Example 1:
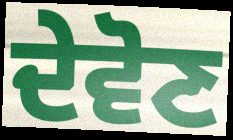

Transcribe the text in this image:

ਦੇਵੋਣ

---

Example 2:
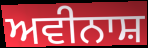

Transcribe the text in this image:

ਅਵੀਨਾਸ਼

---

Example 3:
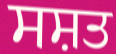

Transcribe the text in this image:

ਸਸ਼ਤ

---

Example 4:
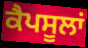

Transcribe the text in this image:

ਕੈਪਸੂਲਾਂ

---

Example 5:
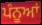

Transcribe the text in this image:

ਪੰਨੂਆਂ